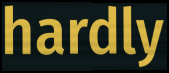
hardly